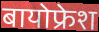
बायोफ्रेश